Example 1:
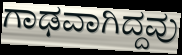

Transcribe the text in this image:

ಗಾಢವಾಗಿದ್ದವು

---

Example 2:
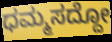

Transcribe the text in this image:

ಧಮ್ಮಸದ್ದೋ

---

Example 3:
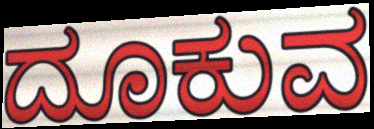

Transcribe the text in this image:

ದೂಕುವ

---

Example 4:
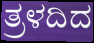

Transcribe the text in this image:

ತ್ರಳದಿದ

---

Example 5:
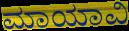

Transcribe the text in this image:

ಮಾಯಾವಿ